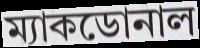
ম্যাকডোনাল